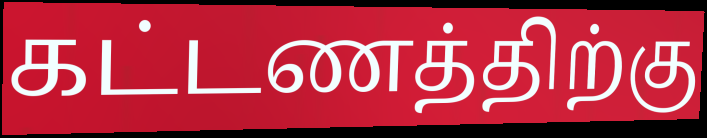
கட்டணத்திற்கு